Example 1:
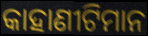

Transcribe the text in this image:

କାହାଣୀଟିମାନ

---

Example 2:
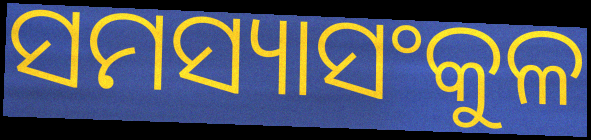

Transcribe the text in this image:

ସମସ୍ୟାସଂକୁଳ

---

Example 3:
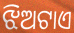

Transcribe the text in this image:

ଝିଅଟାଏ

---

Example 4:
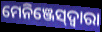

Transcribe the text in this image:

ମେନିଞ୍ଜେସ୍‌ଦ୍ୱାରା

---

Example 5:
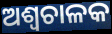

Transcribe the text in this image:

ଅଶ୍ୱଚାଳକ